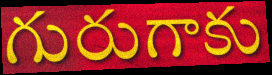
గురుగాకు